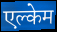
एल्केम